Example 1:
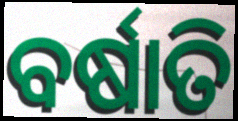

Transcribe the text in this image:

ବର୍ଷାତି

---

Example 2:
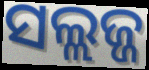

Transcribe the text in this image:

ସଲ୍ଲଜ୍ଜ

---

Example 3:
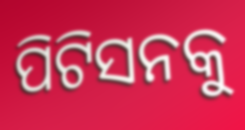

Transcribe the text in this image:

ପିଟିସନକୁ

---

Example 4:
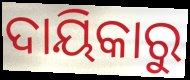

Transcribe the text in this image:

ଦାୟିକାରୁ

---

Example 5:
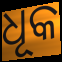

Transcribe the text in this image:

ଧୂକ